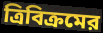
ত্রিবিক্রমের